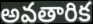
అవతారిక